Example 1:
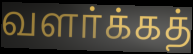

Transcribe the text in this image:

வளர்க்கத்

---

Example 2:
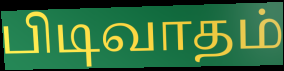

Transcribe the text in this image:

பிடிவாதம்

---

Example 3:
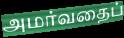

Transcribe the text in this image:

அமர்வதைப்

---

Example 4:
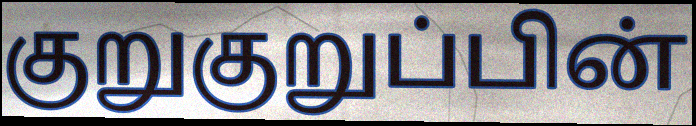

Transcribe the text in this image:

குறுகுறுப்பின்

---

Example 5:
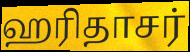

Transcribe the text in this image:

ஹரிதாசர்